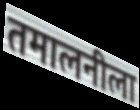
तमालनीला